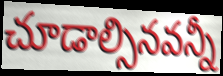
చూడాల్సినవన్నీ